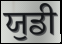
ਯੁਡੀ